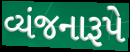
વ્યંજનારૂપે